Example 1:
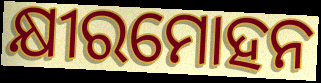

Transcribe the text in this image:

କ୍ଷୀରମୋହନ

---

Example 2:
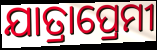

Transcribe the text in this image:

ଯାତ୍ରାପ୍ରେମୀ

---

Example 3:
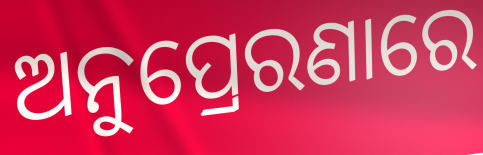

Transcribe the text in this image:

ଅନୁପ୍ରେରଣାରେ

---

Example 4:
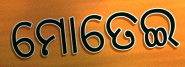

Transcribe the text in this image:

ମୋତେଇ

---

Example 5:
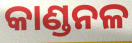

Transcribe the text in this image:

କାଣ୍ଡନଳ